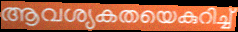
ആവശ്യകതയെകുറിച്ച്